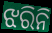
ଝରିନି